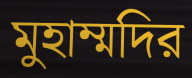
মুহাম্মদির